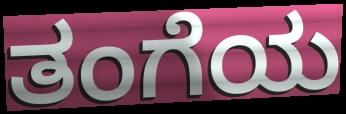
ತಂಗೆಯ